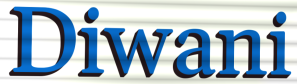
Diwani